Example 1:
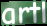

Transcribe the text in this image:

artl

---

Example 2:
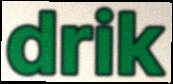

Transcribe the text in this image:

drik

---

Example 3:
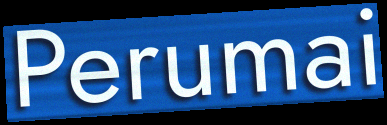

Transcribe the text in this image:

Perumai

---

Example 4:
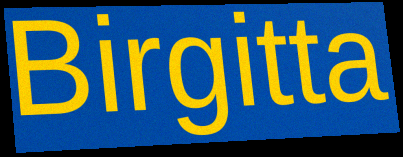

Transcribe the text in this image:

Birgitta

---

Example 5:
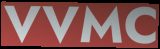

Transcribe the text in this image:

VVMC